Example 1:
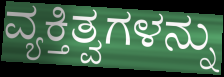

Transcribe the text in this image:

ವ್ಯಕ್ತಿತ್ವಗಳನ್ನು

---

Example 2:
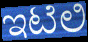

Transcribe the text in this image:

ಇಟೆಲಿ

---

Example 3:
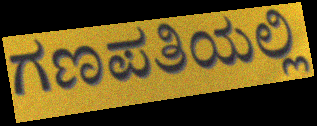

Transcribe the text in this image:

ಗಣಪತಿಯಲ್ಲಿ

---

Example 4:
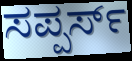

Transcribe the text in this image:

ಸಪ್ಪರ್ಸ್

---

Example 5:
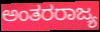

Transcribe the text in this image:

ಅಂತರರಾಜ್ಯ